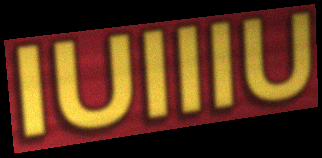
IUIIIU